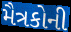
મૈત્રકોની